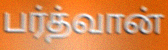
பர்த்வான்